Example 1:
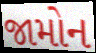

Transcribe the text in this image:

જામોન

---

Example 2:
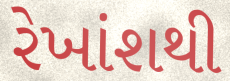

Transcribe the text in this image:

રેખાંશથી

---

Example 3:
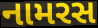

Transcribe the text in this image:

નામરસ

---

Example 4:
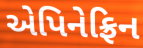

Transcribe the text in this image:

એપિનેફ્રિન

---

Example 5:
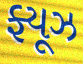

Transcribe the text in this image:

ફ્યૂઝ